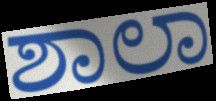
ಶಾಲಾ